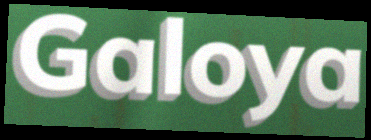
Galoya